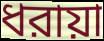
ধরায়া